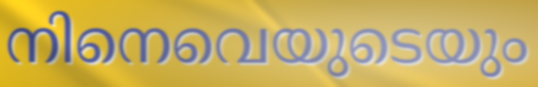
നിനെവെയുടെയും